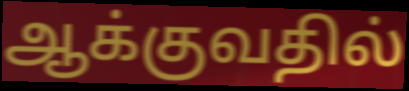
ஆக்குவதில்